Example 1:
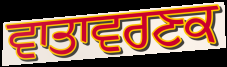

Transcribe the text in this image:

ਵਾਤਾਵਰਣਕ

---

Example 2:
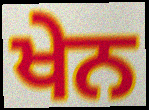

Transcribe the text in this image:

ਖੇਨ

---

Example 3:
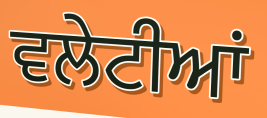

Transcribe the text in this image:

ਵਲੇਟੀਆਂ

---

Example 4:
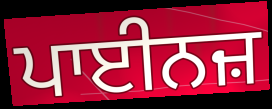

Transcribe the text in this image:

ਪਾਈਨਜ਼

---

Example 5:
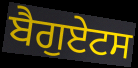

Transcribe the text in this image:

ਬੈਗੁਏਟਸ